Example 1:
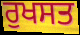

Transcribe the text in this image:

ਰੁਖਸਤ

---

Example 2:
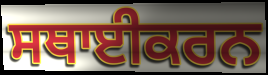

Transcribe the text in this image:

ਸਥਾਈਕਰਨ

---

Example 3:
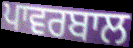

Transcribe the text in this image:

ਪਾਵਰਬਾਲ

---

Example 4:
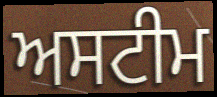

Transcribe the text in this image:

ਅਸਟੀਮ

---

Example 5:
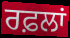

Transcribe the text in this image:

ਰਫ਼ਲਾਂ